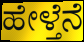
ಹೇಳ್ತೆನೆ